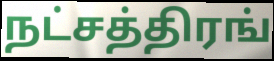
நட்சத்திரங்